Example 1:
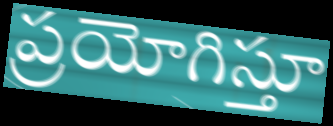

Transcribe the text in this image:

ప్రయోగిస్తూ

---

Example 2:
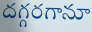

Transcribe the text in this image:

దగ్గరగానూ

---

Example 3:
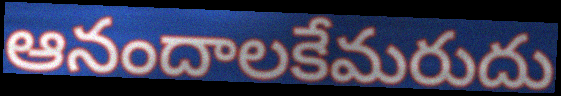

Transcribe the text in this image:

ఆనందాలకేమరుదు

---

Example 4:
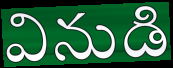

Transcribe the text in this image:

వినుడి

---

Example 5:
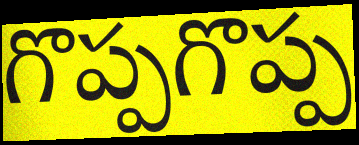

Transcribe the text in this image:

గొప్పగొప్ప